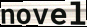
novel